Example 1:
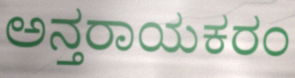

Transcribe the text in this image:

ಅನ್ತರಾಯಕರಂ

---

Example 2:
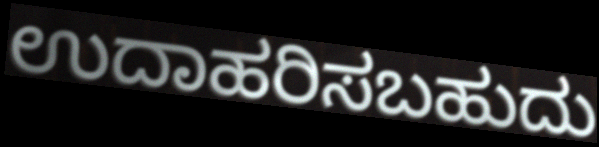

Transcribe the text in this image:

ಉದಾಹರಿಸಬಹುದು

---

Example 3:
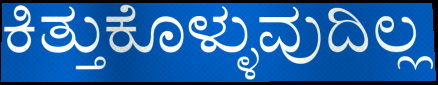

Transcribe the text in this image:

ಕಿತ್ತುಕೊಳ್ಳುವುದಿಲ್ಲ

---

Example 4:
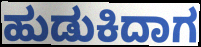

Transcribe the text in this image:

ಹುಡುಕಿದಾಗ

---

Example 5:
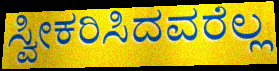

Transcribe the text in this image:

ಸ್ವೀಕರಿಸಿದವರೆಲ್ಲ